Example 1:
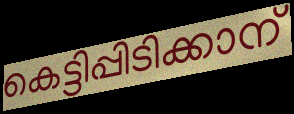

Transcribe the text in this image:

കെട്ടിപ്പിടിക്കാന്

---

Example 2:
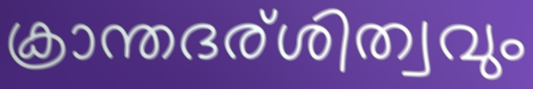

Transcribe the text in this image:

ക്രാന്തദര്ശിത്വവും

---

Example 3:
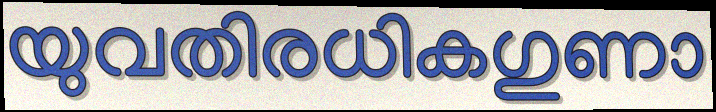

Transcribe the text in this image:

യുവതിരധികഗുണാ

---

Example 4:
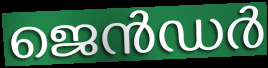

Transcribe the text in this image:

ജെൻഡർ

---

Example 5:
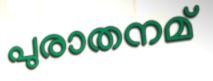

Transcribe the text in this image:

പുരാതനമ്